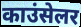
काउंसेलर